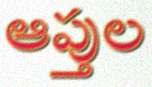
ఆప్తుల